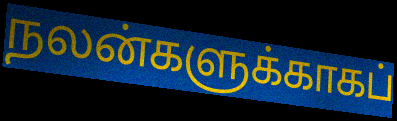
நலன்களுக்காகப்